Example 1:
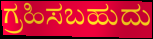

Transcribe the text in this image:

ಗ್ರಹಿಸಬಹುದು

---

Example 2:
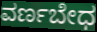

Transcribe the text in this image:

ವರ್ಣಬೇಧ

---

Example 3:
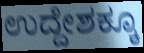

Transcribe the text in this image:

ಉದ್ದೇಶಕ್ಕೂ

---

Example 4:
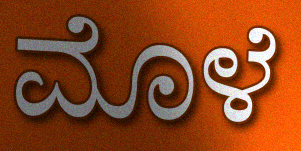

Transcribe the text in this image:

ಮೊಳೆ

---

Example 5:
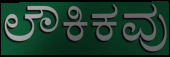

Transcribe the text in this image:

ಲೌಕಿಕವು